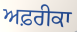
ਅਫ਼ਰੀਕਾ